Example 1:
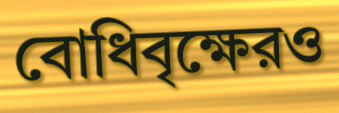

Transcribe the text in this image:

বোধিবৃক্ষেরও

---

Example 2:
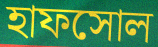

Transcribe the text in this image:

হাফসোল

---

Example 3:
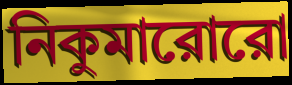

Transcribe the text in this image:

নিকুমারোরো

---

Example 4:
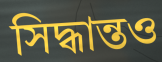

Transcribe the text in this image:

সিদ্ধান্তও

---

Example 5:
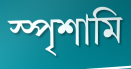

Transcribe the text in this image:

স্পৃশামি